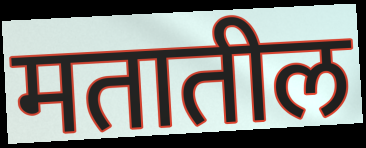
मतातील